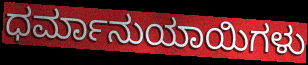
ಧರ್ಮಾನುಯಾಯಿಗಳು